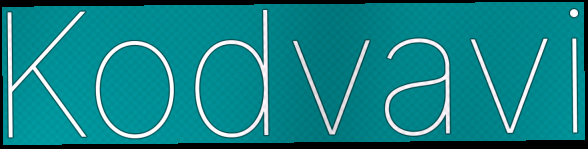
Kodvavi